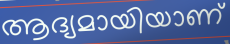
ആദ്യമായിയാണ്